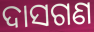
ଦାସଗଣ